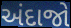
અંદાજો